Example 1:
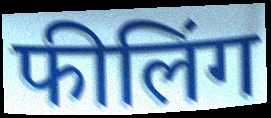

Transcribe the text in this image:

फीलिंग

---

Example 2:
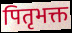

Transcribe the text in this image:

पितृभक्त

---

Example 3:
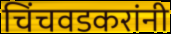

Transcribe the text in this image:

चिंचवडकरांनी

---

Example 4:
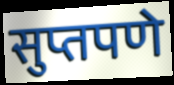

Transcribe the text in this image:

सुप्तपणे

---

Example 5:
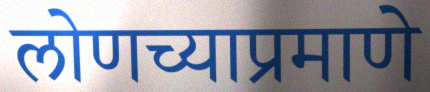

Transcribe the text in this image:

लोणच्याप्रमाणे